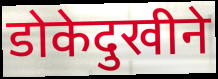
डोकेदुखीने